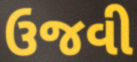
ઉજવી